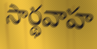
సార్థవాహ